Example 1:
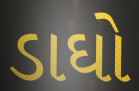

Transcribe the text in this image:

ડાઘો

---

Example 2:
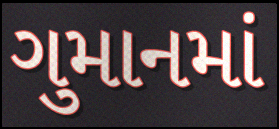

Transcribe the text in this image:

ગુમાનમાં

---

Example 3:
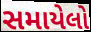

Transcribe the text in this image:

સમાયેલો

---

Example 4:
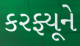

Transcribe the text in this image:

કરફ્યૂને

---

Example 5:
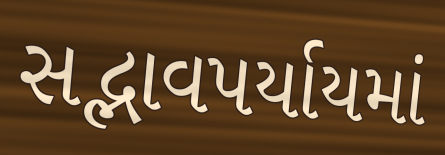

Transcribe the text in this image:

સદ્ભાવપર્યાયમાં